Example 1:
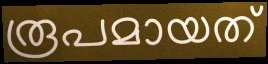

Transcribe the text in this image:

രൂപമായത്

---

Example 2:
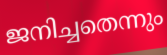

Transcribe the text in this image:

ജനിച്ചതെന്നും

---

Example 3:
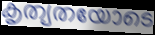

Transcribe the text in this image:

കൃത്യതയോടെ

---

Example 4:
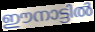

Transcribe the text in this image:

ഈനാട്ടിൽ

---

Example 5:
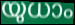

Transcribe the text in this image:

യുധാം